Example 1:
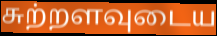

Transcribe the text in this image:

சுற்றளவுடைய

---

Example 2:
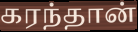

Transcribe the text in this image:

கரந்தான்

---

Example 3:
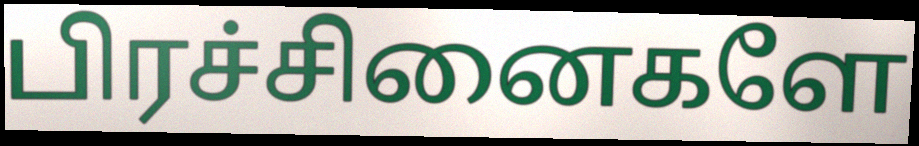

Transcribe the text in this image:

பிரச்சினைகளே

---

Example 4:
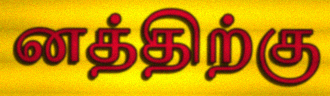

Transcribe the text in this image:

னத்திற்கு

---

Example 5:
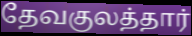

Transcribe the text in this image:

தேவகுலத்தார்